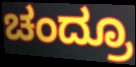
ಚಂದ್ರೂ